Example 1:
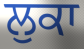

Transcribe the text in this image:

ਲੁਕਾ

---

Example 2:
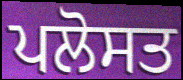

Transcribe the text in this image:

ਪਲੋਸਤ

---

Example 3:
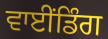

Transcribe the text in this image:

ਵਾਈਂਡਿੰਗ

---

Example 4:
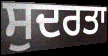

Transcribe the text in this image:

ਸੁਦਰਤਾ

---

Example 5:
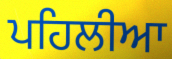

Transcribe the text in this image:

ਪਹਿਲੀਆ